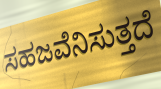
ಸಹಜವೆನಿಸುತ್ತದೆ